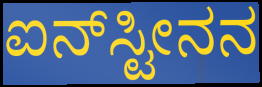
ಐನ್‌ಸ್ಟೀನನ